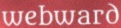
webward